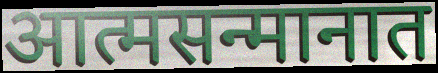
आत्मसन्मानात